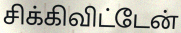
சிக்கிவிட்டேன்